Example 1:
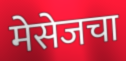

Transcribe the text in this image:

मेसेजचा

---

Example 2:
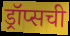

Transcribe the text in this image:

ड्रॉप्सची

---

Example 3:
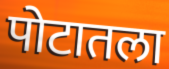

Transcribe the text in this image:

पोटातला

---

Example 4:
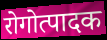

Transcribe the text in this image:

रोगोत्पादक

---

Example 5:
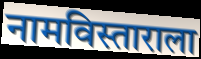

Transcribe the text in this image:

नामविस्ताराला